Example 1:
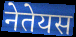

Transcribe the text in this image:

नेतेयस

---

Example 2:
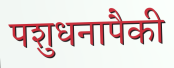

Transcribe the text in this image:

पशुधनापैकी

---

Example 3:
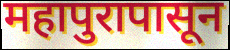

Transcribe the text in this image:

महापुरापासून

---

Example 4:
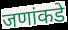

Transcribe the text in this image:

जणांकडे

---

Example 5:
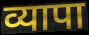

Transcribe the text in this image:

व्यापा